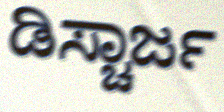
ಡಿಸ್ಚಾರ್ಜ